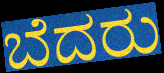
ಬೆದರು